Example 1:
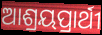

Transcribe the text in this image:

ଆଶ୍ରୟପ୍ରାର୍ଥୀ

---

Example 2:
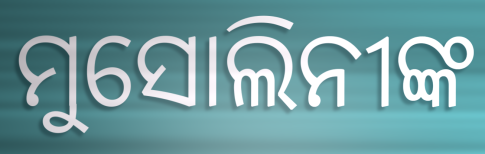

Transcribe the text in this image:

ମୁସୋଲିନୀଙ୍କ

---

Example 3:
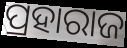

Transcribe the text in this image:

ପ୍ରହାରାଜ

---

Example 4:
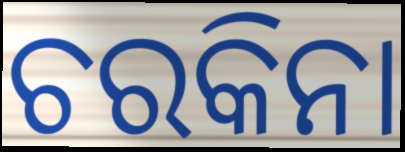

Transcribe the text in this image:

ଚରକିନା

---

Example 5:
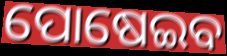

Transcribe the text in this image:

ପୋଷେଇବ